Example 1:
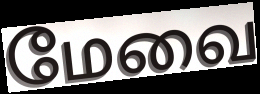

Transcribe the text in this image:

மேவை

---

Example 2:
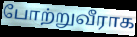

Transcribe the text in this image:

போற்றுவீராக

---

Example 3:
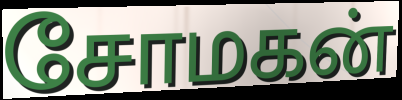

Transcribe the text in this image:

சோமகன்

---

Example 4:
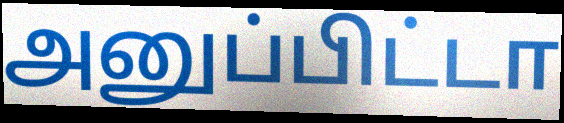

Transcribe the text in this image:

அனுப்பிட்டா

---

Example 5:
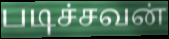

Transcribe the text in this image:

படிச்சவன்